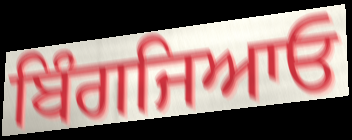
ਬਿੰਗਜਿਆਓ